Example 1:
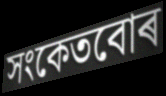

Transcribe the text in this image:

সংকেতবোৰ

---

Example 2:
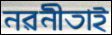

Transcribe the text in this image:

নৱনীতাই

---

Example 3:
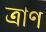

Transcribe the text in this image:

ত্ৰাণ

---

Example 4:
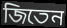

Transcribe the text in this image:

জিতেন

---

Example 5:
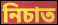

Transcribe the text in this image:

নিচাত